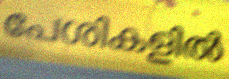
പേശികളിൽ